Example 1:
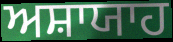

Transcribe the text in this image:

ਅਸ਼ਾਯਾਹ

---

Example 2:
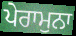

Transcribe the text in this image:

ਪੇਰਾਮੁਨਾ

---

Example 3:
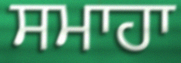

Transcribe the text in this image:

ਸਮਾਹਾ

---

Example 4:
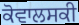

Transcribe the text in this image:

ਕੋਵਾਲਸਕੀ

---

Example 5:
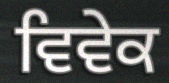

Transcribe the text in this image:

ਵਿਵੇਕ